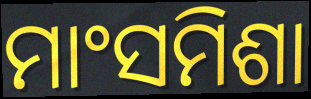
ମାଂସମିଶା